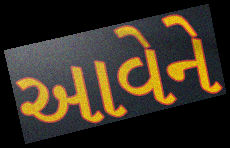
આવેને